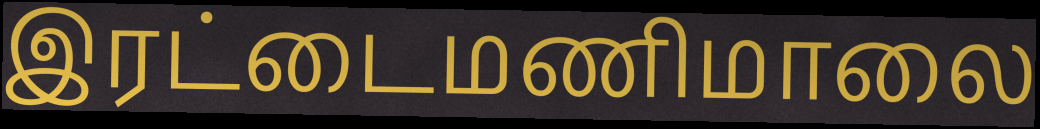
இரட்டைமணிமாலை